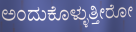
ಅಂದುಕೊಳ್ಳುತ್ತೀರೋ